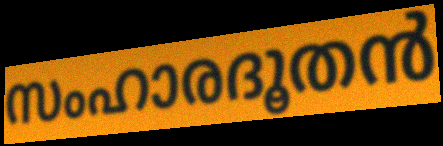
സംഹാരദൂതൻ